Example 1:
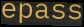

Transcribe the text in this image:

epass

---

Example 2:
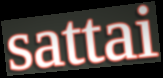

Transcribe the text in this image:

sattai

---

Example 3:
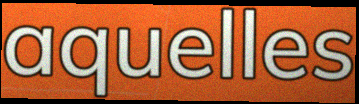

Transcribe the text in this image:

aquelles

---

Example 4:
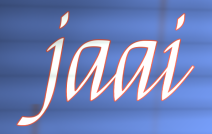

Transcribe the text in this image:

jaai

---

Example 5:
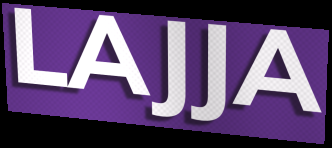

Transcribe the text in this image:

LAJJA